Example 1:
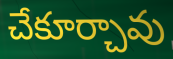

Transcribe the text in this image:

చేకూర్చావు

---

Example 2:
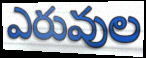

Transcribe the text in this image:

ఎరువుల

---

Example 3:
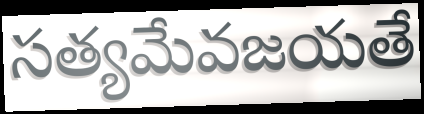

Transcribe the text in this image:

సత్యమేవజయతే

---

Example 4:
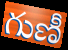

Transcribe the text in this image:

గుణీ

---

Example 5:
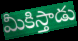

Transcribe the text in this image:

మీకిస్తాడు